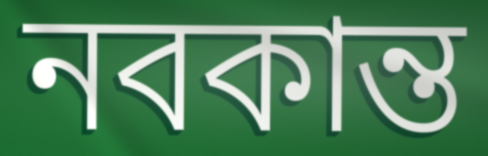
নবকান্ত